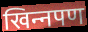
खिन्नपण